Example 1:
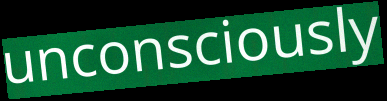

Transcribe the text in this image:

unconsciously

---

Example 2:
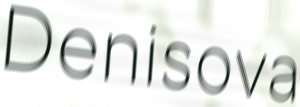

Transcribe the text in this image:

Denisova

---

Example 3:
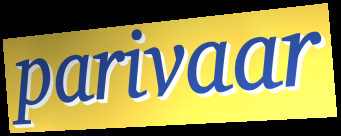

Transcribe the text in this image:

parivaar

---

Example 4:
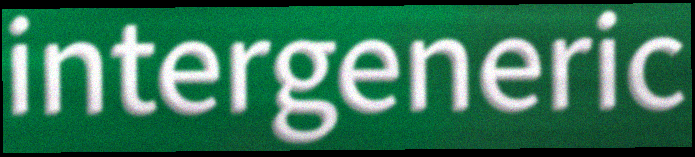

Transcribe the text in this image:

intergeneric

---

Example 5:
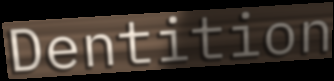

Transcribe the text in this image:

Dentition